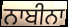
ਨਾਬੀਨਾ